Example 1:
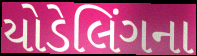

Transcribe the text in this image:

યોડેલિંગના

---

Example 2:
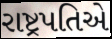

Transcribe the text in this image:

રાષ્ટ્રપતિએ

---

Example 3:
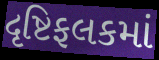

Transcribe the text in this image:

દૃષ્ટિફલકમાં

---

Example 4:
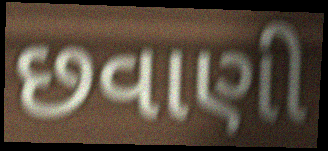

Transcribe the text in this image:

છવાણી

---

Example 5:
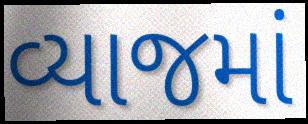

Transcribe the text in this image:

વ્યાજમાં